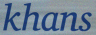
khans